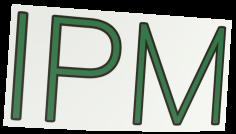
IPM